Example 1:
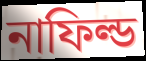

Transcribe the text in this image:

নাফিল্ড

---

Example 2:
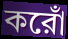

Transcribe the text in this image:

করোঁ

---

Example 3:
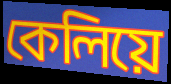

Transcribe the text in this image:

কেলিয়ে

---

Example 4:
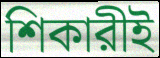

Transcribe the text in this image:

শিকারীই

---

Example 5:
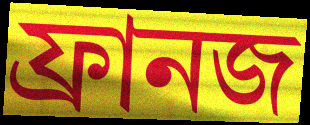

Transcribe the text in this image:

ফ্রানজ